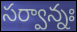
సర్వాన్నః